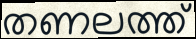
തണലത്ത്